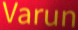
Varun